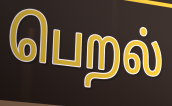
பெறல்